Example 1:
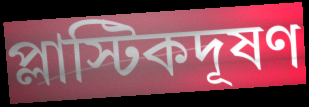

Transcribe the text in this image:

প্লাস্টিকদূষণ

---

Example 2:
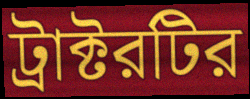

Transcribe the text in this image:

ট্রাক্টরটির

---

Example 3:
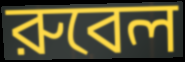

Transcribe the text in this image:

রুবেল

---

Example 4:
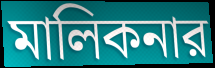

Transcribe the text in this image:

মালিকনার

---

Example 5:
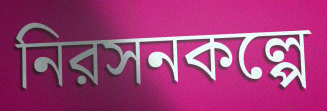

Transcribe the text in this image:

নিরসনকল্পে